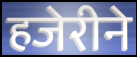
हजेरीने